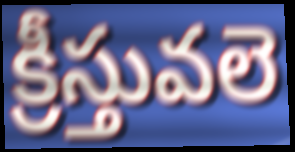
క్రీస్తువలె